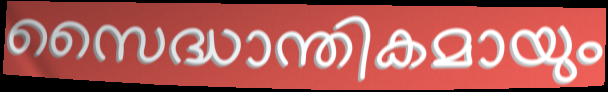
സൈദ്ധാന്തികമായും